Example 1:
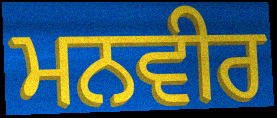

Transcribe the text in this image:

ਮਨਵੀਰ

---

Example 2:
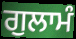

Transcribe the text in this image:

ਗੁਲਾਮੰ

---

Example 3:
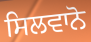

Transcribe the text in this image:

ਸਿਲਵਾਨੋ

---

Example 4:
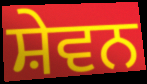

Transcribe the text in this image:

ਸ਼ੇਵਨ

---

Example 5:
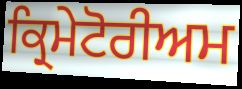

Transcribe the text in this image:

ਕ੍ਰਿਮੇਟੋਰੀਅਮ